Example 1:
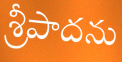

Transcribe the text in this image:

శ్రీపాదను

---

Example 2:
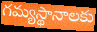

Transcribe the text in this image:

గమ్యస్థానాలకు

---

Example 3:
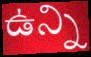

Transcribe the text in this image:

ఉన్ని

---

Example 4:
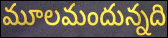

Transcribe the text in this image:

మూలమందున్నది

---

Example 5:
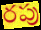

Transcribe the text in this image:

రపు